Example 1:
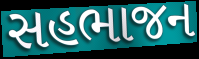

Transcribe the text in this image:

સહભાજન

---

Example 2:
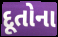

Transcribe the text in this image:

દૂતોના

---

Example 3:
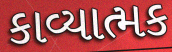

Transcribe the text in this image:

કાવ્યાત્મક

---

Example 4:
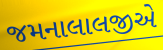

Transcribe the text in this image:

જમનાલાલજીએ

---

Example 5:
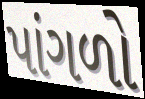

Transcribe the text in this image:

પાંગળો